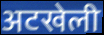
अटखेली